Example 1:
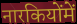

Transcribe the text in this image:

नारकियोंमें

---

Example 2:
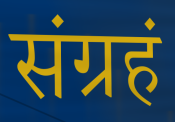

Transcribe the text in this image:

संग्रहं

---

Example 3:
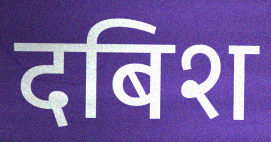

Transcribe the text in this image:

दबिश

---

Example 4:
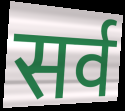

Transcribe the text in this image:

सर्व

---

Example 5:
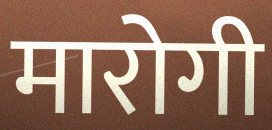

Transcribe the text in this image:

मारोगी